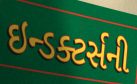
ઇન્ડક્ટર્સની